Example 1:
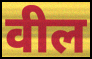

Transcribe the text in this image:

वील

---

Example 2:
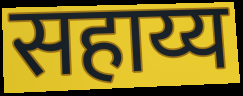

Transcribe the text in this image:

सहाय्य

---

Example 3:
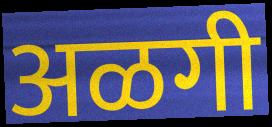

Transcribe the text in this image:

अळगी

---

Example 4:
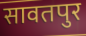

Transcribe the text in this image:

सावतपुर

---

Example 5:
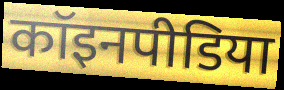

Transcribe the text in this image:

कॉइनपीडिया